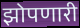
झोपणारी